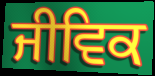
ਜੀਵਿਕ